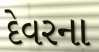
દેવરના